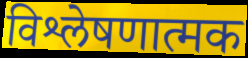
विश्लेषणात्मक